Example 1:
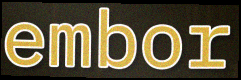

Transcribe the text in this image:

embor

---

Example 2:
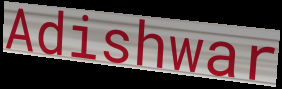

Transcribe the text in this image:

Adishwar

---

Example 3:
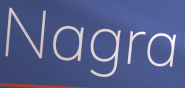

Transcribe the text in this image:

Nagra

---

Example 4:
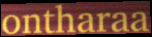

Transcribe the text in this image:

ontharaa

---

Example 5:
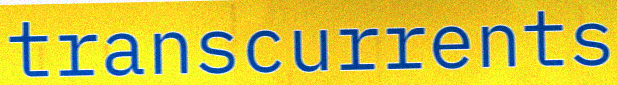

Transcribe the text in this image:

transcurrents